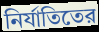
নির্যাতিতের